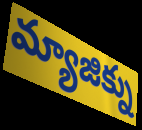
మ్యాజిక్ను